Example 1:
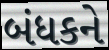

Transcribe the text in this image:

બંધકને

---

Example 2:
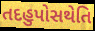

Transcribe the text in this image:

તદહુપોસથેતિ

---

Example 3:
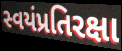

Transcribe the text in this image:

સ્વયંપ્રતિરક્ષા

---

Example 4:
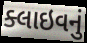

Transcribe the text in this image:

ક્લાઇવનું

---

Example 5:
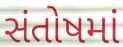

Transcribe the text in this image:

સંતોષમાં